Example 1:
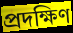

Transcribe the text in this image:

প্ৰদক্ষিণ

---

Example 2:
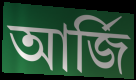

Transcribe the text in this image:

আৰ্জি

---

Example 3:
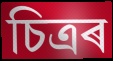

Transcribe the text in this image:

চিত্ৰৰ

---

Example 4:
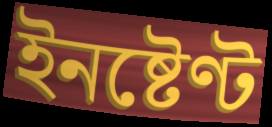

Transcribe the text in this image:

ইনষ্টেণ্ট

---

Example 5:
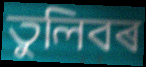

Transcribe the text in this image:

তুলিবৰ